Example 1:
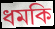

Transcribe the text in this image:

ধমকি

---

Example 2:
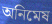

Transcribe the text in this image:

অনিমেষ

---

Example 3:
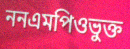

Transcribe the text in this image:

ননএমপিওভুক্ত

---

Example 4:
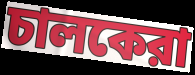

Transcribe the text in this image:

চালকেরা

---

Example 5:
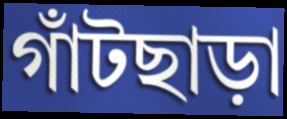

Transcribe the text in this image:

গাঁটছাড়া